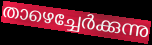
താഴെച്ചേർക്കുന്നു